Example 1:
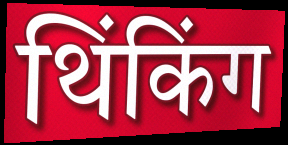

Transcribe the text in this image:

थिंकिंग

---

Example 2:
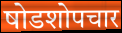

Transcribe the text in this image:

षोडशोपचार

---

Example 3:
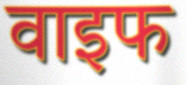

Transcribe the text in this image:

वाइफ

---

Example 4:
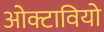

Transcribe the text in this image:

ओक्टावियो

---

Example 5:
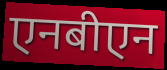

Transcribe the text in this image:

एनबीएन